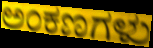
ಅಂಕಣಗಳು